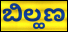
ಬಿಲ್ಹಣ